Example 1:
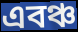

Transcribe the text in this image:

এবঞ্চ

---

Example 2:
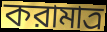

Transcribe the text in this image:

করামাত্র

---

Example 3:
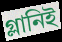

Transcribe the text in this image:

গ্লানিই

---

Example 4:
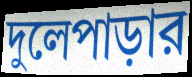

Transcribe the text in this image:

দুলেপাড়ার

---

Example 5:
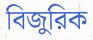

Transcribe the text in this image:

বিজুরিক